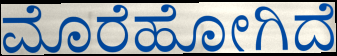
ಮೊರೆಹೋಗಿದೆ